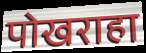
पोखराहा